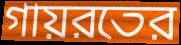
গায়রতের